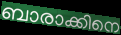
ബാരാക്കിനെ